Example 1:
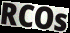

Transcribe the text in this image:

RCOs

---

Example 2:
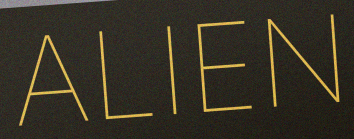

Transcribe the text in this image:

ALIEN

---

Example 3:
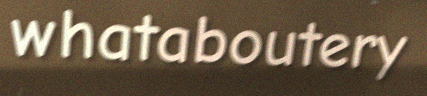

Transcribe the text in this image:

whataboutery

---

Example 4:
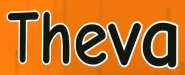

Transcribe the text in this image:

Theva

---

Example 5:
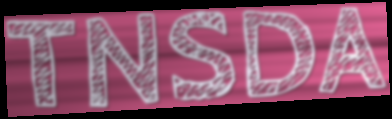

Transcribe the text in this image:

TNSDA